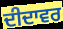
ਦੀਦਾਵਰ